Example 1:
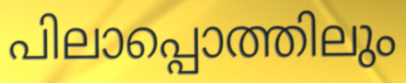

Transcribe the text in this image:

പിലാപ്പൊത്തിലും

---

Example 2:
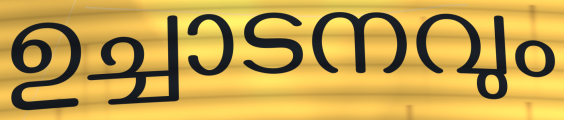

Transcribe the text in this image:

ഉച്ചാടനവും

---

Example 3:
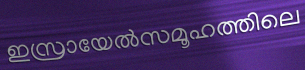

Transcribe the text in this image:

ഇസ്രായേൽസമൂഹത്തിലെ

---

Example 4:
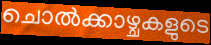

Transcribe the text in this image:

ചൊൽക്കാഴ്ചകളുടെ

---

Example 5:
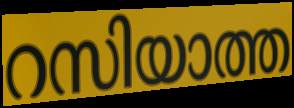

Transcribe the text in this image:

റസിയാത്ത